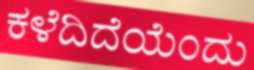
ಕಳೆದಿದೆಯೆಂದು